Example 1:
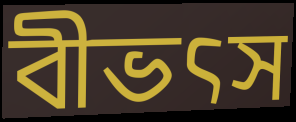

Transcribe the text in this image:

বীভৎস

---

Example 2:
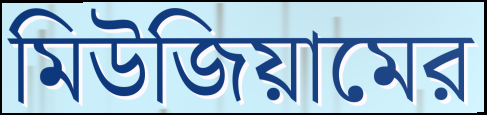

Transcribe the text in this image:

মিউজিয়ামের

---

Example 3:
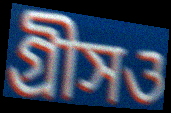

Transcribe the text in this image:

গ্রীসও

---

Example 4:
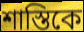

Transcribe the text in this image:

শাস্তিকে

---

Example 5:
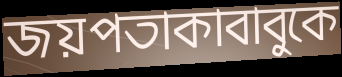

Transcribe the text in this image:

জয়পতাকাবাবুকে